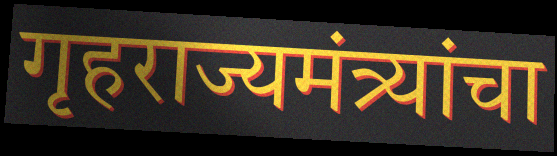
गृहराज्यमंत्र्यांचा